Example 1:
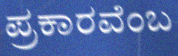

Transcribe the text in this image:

ಪ್ರಕಾರವೆಂಬ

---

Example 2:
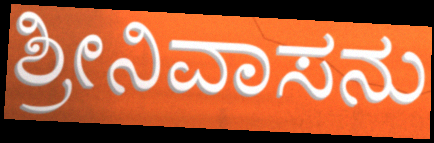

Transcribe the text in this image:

ಶ್ರೀನಿವಾಸನು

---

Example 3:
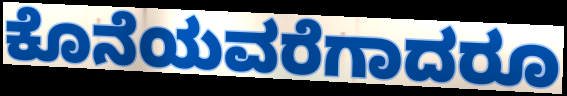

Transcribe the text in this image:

ಕೊನೆಯವರೆಗಾದರೂ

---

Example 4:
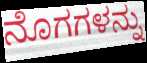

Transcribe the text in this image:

ನೊಗಗಳನ್ನು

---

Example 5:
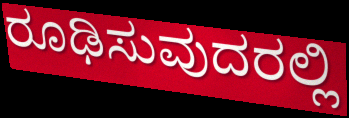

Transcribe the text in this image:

ರೂಢಿಸುವುದರಲ್ಲಿ